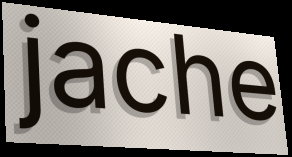
jache